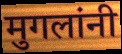
मुगलांनी